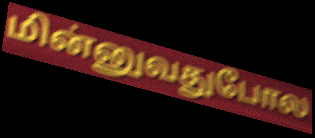
மின்னுவதுபோல